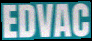
EDVAC